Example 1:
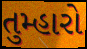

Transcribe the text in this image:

તુમ્હારો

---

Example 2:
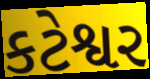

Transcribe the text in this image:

કટેશ્વર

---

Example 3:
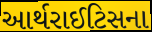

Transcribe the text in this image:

આર્થરાઈટિસના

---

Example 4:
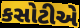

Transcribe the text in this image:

કસોટીએ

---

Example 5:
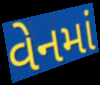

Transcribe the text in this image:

વેનમાં